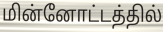
மின்னோட்டத்தில்